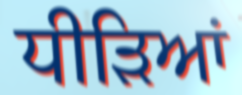
ਧੀੜਿਆਂ